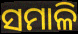
ସମାଳି